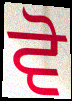
ਵੋ